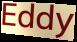
Eddy